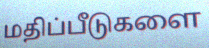
மதிப்பீடுகளை